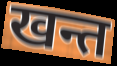
खन्त